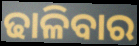
ଢାଳିବାର